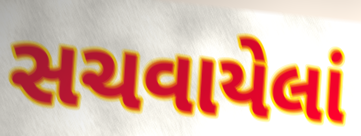
સચવાયેલાં